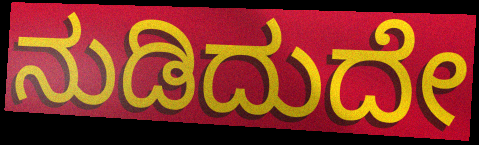
ನುಡಿದುದೇ